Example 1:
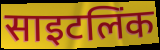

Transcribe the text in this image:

साइटलिंक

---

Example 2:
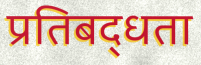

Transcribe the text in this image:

प्रतिबद्धता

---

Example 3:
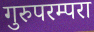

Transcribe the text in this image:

गुरुपरम्परा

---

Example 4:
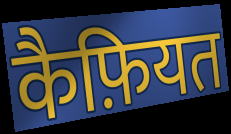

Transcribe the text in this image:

कैफ़ियत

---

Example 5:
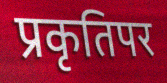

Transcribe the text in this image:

प्रकृतिपर